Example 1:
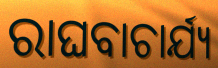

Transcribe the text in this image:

ରାଘବାଚାର୍ଯ୍ୟ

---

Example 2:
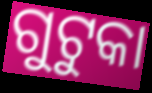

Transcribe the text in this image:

ଗୁଟୁକା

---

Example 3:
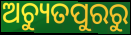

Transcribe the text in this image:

ଅଚ୍ୟୁତପୁରରୁ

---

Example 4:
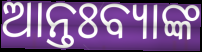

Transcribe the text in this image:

ଆନ୍ତଃବ୍ୟାଙ୍କ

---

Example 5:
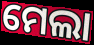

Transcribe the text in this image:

ମେଲା